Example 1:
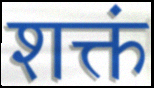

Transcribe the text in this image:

शक्तं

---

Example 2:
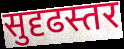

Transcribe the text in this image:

सुदृढस्तर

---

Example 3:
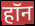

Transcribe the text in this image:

हॉन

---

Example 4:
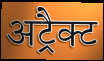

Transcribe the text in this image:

अट्रैक्ट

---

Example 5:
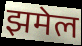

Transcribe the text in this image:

झमेल